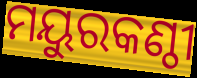
ମୟୁରକଣ୍ଠୀ